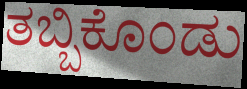
ತಬ್ಬಿಕೊಂಡು